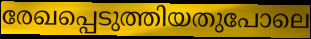
രേഖപ്പെടുത്തിയതുപോലെ